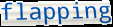
flapping